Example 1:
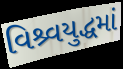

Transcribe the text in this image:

વિશ્ર્વયુદ્ધમાં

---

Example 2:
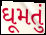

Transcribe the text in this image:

ઘૂમતું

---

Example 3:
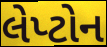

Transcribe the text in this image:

લેપ્ટોન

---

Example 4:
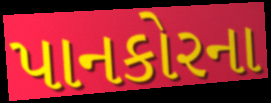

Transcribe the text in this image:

પાનકોરના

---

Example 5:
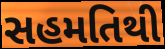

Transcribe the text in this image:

સહમતિથી